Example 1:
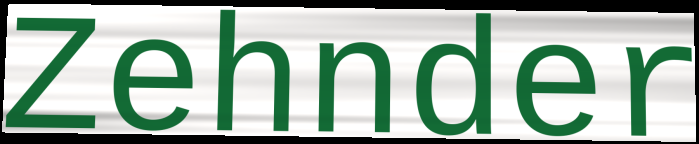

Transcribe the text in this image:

Zehnder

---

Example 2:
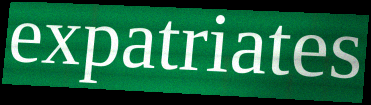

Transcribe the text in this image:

expatriates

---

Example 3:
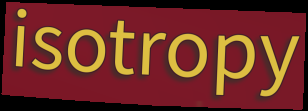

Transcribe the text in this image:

isotropy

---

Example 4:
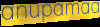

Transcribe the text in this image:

anupamaa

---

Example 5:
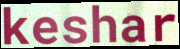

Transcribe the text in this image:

keshar